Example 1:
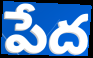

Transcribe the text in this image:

పేద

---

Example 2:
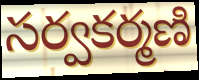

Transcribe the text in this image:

సర్వకర్మణి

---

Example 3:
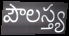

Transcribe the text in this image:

పౌలస్త్య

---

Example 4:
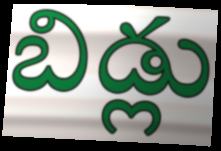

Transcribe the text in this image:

బిడ్లు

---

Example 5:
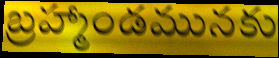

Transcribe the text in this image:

బ్రహ్మాండమునకు